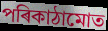
পৰিকাঠামোত